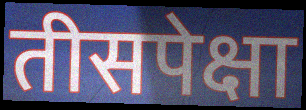
तीसपेक्षा